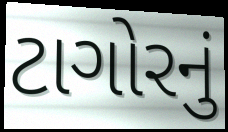
ટાગોરનું